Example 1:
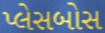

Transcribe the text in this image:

પ્લેસબોસ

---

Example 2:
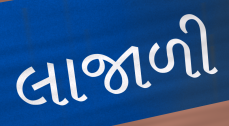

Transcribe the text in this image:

લાજાળી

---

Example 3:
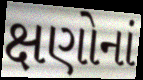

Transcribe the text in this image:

ક્ષણોનાં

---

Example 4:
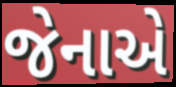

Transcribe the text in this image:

જેનાએ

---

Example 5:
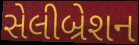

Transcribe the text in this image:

સેલીબ્રેશન